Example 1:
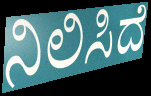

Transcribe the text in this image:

ನಿಲಿಸಿದೆ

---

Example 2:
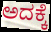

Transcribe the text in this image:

ಅದಕ್ಕೆ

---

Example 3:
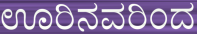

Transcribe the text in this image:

ಊರಿನವರಿಂದ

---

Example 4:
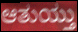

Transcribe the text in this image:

ಆತುಯ್ತು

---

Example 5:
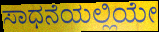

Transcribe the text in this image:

ಸಾಧನೆಯಲ್ಲಿಯೇ